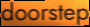
doorstep